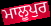
ਮਾਲੂਪੁਰ